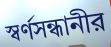
স্বর্ণসন্ধানীর